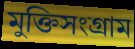
মুক্তিসংগ্রাম